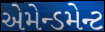
એમેન્ડમેન્ટ